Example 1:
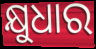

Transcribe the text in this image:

କ୍ଷୁଧାର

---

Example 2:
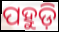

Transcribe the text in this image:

ପହୁଡ଼ି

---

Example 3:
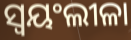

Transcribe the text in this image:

ସ୍ବୟଂଲୀଳା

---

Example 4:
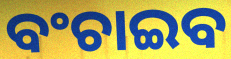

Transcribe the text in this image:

ବଂଚାଇବ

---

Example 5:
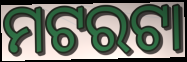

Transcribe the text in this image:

ମଟରଟା